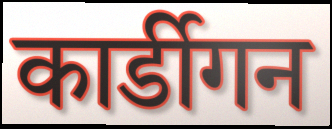
कार्डीगन